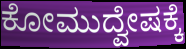
ಕೋಮುದ್ವೇಷಕ್ಕೆ